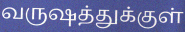
வருஷத்துக்குள்